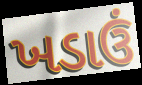
ખડાઉં